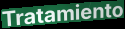
Tratamiento